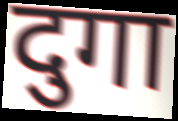
दुगा